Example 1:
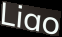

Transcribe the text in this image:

Liao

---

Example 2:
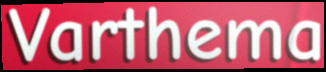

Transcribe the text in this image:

Varthema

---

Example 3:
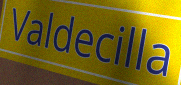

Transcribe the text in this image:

Valdecilla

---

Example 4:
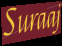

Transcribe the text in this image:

Suraaj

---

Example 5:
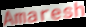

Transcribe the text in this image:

Amaresh